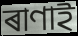
ৰাণাই